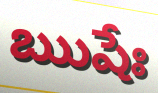
ఋషేః